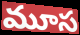
మూస